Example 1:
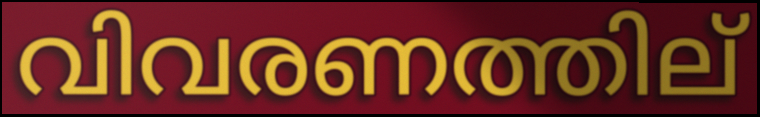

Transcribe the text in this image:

വിവരണത്തില്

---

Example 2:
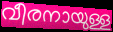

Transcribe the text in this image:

വീരനായുള്ള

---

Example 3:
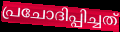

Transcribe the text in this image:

പ്രചോദിപ്പിച്ചത്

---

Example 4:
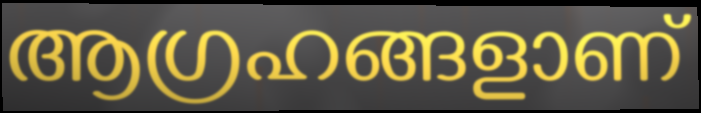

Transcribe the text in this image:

ആഗ്രഹങ്ങളാണ്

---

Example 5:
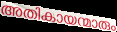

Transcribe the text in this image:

അതികായന്മാരും